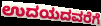
ಉದಯದವರೆಗೆ